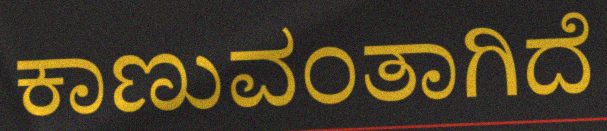
ಕಾಣುವಂತಾಗಿದೆ